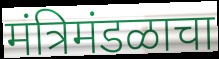
मंत्रिमंडळाचा